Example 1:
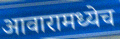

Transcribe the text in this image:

आवारामध्येच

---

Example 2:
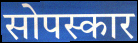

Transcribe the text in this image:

सोपस्कार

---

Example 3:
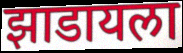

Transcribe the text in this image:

झाडायला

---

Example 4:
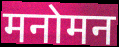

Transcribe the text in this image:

मनोमन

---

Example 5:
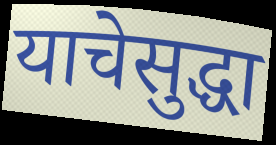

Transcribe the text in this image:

याचेसुद्धा